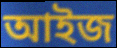
আইজ